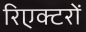
रिएक्टरों